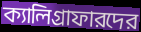
ক্যালিগ্রাফারদের